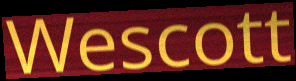
Wescott